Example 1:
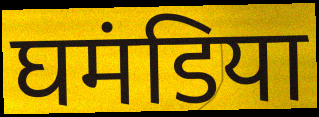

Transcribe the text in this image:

घमंडिया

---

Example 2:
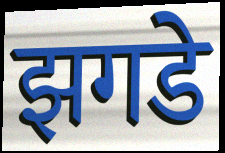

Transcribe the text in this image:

झगडे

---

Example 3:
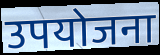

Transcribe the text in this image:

उपयोजना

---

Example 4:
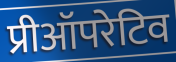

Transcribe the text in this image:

प्रीऑपरेटिव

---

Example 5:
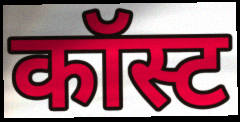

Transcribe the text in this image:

कॉस्ट